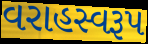
વરાહસ્વરૂપ